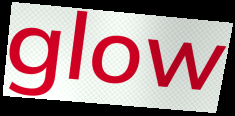
glow